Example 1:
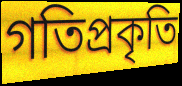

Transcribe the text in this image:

গতিপ্রকৃতি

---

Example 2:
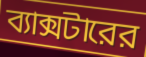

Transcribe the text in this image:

ব্যাক্সটারের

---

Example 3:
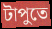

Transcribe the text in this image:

টাপুতে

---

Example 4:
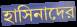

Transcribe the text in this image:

হাসিনাদের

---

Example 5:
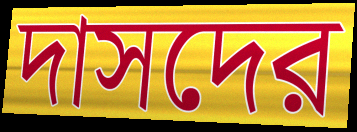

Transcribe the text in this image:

দাসদের